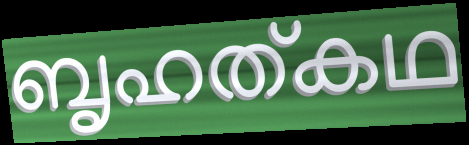
ബൃഹത്കഥ